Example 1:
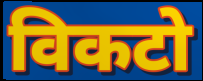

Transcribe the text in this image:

विकटो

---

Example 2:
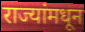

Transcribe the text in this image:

राज्यांमधून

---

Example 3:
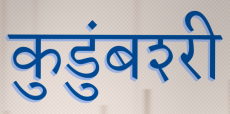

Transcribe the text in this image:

कुडुंबश्री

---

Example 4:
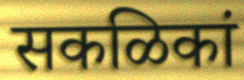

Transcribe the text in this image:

सकळिकां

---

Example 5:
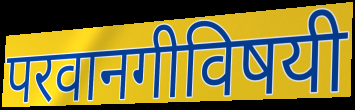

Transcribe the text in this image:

परवानगीविषयी